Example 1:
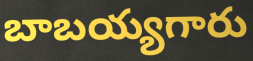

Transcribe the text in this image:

బాబయ్యగారు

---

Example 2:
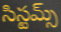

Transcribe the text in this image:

సిస్టమ్స్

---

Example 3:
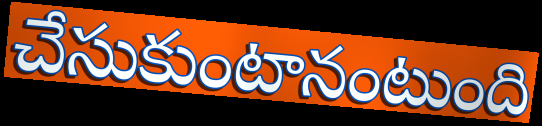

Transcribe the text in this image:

చేసుకుంటానంటుంది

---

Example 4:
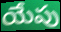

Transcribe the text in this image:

యేపు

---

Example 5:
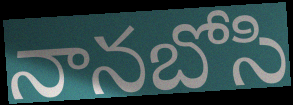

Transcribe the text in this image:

నానబోసి